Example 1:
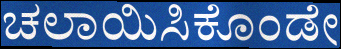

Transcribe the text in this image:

ಚಲಾಯಿಸಿಕೊಂಡೇ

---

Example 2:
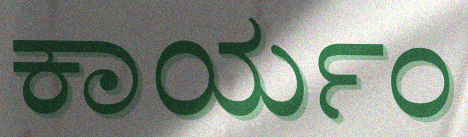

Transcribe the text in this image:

ಕಾರ್ಯಂ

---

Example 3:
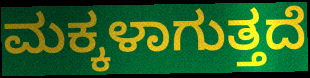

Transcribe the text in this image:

ಮಕ್ಕಳಾಗುತ್ತದೆ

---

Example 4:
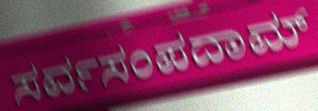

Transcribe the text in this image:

ಸರ್ವಸಂಪದಾಮ್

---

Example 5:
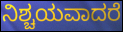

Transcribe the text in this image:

ನಿಶ್ಚಯವಾದರೆ